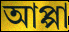
আপ্পা